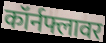
कॉर्नफ्लावर